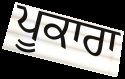
ਪੂਕਾਰਾ